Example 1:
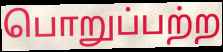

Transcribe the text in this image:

பொறுப்பற்ற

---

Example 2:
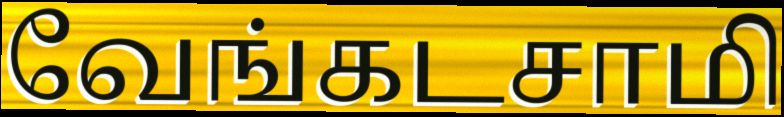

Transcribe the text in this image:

வேங்கடசாமி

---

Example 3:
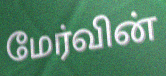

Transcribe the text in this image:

மேர்வின்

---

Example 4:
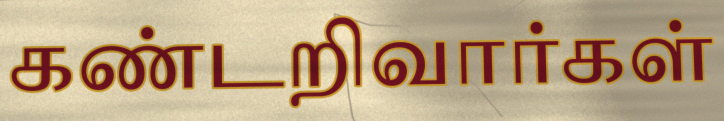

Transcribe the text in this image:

கண்டறிவார்கள்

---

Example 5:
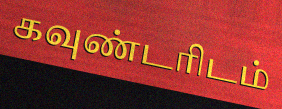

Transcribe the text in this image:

கவுண்டரிடம்